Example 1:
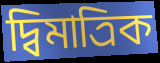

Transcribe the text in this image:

দ্বিমাত্রিক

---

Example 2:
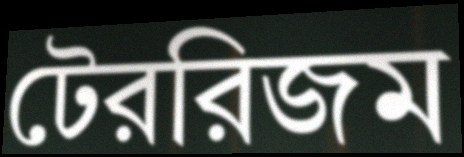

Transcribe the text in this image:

টেররিজম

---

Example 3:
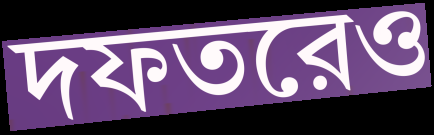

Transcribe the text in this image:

দফতরেও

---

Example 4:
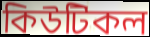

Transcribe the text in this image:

কিউটিকল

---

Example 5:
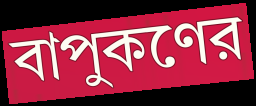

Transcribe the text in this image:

বাপুকণের